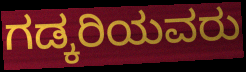
ಗಡ್ಕರಿಯವರು